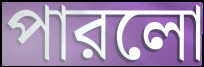
পারলো